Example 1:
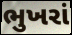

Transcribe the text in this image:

ભુખરાં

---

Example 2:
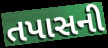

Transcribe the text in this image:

તપાસની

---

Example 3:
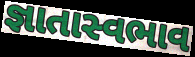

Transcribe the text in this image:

જ્ઞાતાસ્વભાવ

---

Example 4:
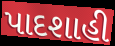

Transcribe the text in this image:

પાદશાહી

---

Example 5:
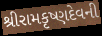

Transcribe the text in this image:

શ્રીરામકૃષ્ણદેવની